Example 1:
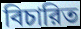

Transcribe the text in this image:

বিচারিত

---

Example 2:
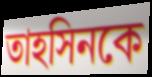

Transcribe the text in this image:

তাহসিনকে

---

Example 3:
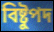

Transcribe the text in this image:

বিষ্টুপদ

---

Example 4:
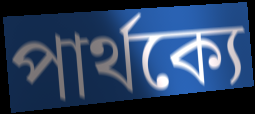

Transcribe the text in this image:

পার্থক্যে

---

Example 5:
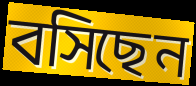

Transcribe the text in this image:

বসিছেন